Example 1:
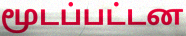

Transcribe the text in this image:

மூடப்பட்டன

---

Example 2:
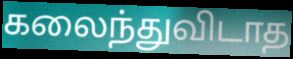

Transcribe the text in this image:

கலைந்துவிடாத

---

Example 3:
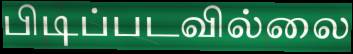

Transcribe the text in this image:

பிடிப்படவில்லை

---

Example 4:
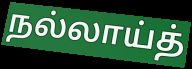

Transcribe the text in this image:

நல்லாய்த்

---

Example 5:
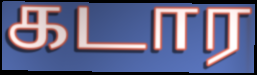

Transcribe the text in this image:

கடார